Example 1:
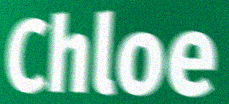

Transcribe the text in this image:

Chloe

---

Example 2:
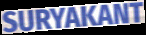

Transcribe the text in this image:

SURYAKANT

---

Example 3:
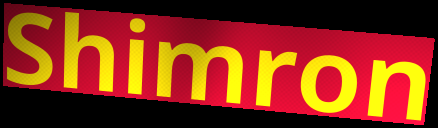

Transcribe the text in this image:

Shimron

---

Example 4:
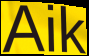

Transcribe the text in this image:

Aik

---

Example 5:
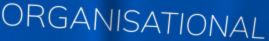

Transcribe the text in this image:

ORGANISATIONAL